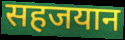
सहजयान